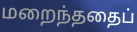
மறைந்ததைப்